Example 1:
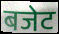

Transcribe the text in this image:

बजेट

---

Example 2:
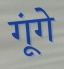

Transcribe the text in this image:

गूंगे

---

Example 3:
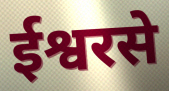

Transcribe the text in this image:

ईश्वरसे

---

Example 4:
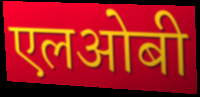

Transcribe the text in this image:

एलओबी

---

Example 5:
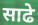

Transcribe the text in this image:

साढे